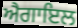
ਐਗਾਇਲ